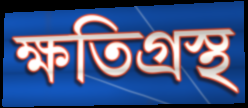
ক্ষতিগ্রস্থ